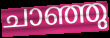
ചാഞ്ഞു